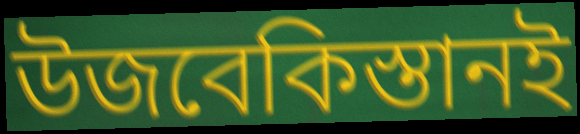
উজবেকিস্তানই